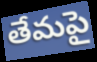
తేమపై